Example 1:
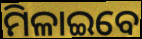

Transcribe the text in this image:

ମିଳାଇବେ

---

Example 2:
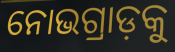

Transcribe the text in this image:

ନୋଭଗ୍ରାଡ଼କୁ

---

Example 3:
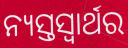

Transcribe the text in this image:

ନ୍ୟସ୍ତସ୍ଵାର୍ଥର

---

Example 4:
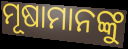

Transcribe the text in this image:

ମୂଷାମାନଙ୍କୁ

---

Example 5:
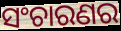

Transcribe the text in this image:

ସଂଚାରଣର